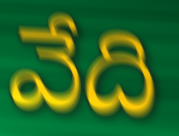
వేది